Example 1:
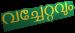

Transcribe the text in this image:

വച്ചേറ്റവും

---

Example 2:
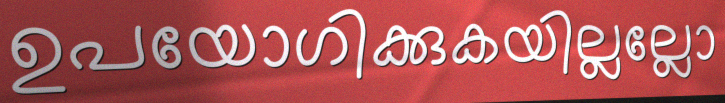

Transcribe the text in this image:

ഉപയോഗിക്കുകയില്ലല്ലോ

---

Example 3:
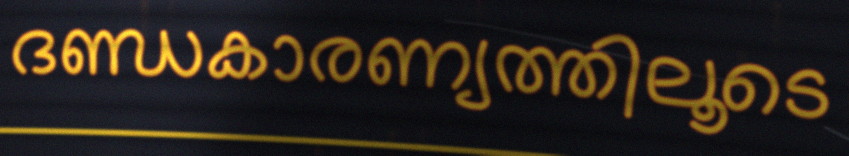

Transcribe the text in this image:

ദണ്ഡകാരണ്യത്തിലൂടെ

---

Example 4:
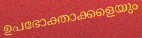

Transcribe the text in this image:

ഉപഭോക്താക്കളെയും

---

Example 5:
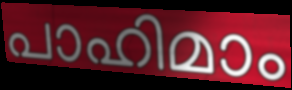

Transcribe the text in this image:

പാഹിമാം